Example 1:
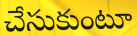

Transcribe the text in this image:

చేసుకుంటూ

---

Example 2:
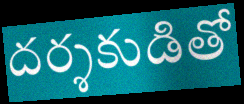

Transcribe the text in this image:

దర్శకుడితో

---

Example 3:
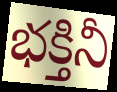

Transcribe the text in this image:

భక్తినీ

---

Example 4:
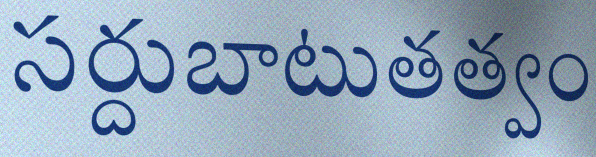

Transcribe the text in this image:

సర్దుబాటుతత్వం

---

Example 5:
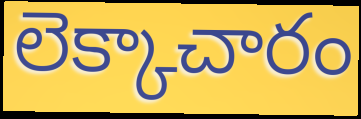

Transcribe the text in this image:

లెక్కాచారం